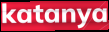
katanya